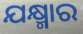
ଯକ୍ଷ୍ମାର